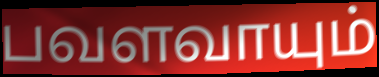
பவளவாயும்